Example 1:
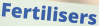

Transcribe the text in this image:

Fertilisers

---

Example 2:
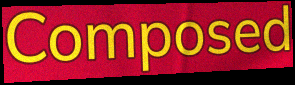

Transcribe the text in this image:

Composed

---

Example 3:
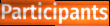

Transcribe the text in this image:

Participants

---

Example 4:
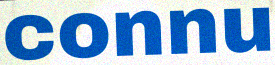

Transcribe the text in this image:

connu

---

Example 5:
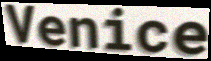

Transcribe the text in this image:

Venice